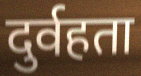
दुर्वहता